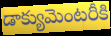
డాక్యుమెంటరీకి